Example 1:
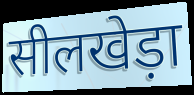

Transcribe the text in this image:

सीलखेड़ा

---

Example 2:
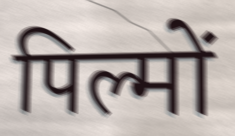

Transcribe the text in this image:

पिल्मों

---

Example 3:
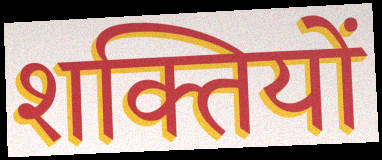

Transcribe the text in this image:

शक्तियों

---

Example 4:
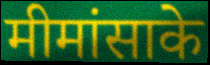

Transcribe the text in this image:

मीमांसाके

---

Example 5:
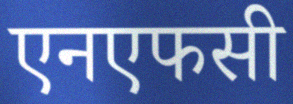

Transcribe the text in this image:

एनएफसी